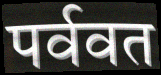
पर्ववत